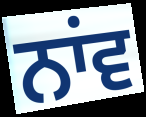
ਨਾਂਵ